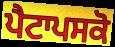
ਪੈਟਾਪਸਕੋ